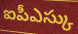
ఐపీఎస్కు